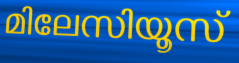
മിലേസിയൂസ്